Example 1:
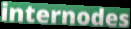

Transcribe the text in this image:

internodes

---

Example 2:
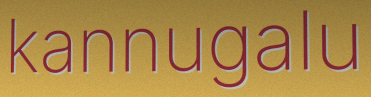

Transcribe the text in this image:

kannugalu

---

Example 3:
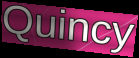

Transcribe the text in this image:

Quincy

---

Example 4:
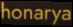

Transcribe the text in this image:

honarya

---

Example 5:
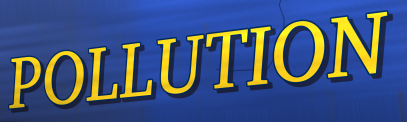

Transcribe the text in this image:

POLLUTION